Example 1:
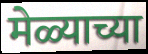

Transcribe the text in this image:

मेळ्याच्या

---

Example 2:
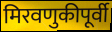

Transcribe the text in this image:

मिरवणुकीपूर्वी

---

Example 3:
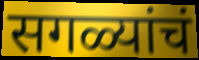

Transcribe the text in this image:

सगळ्यांचं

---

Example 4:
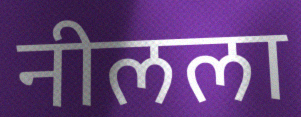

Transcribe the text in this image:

नीलला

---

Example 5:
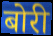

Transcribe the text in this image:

बोरी